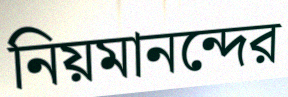
নিয়মানন্দের